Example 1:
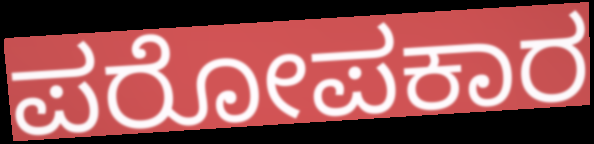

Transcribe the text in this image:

ಪರೋಪಕಾರ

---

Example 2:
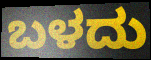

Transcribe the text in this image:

ಬಳದು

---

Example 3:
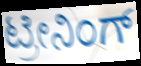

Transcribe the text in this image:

ಟ್ರೇನಿಂಗ್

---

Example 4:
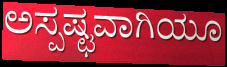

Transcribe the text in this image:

ಅಸ್ಪಷ್ಟವಾಗಿಯೂ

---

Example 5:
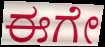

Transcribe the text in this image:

ಈಗೇ